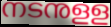
നടനുളള